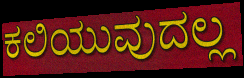
ಕಲಿಯುವುದಲ್ಲ